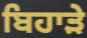
ਬਿਹਾੜੇ